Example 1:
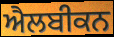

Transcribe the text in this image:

ਐਲਬੀਕਨ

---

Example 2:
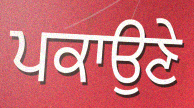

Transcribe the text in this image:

ਪਕਾਉਣੇ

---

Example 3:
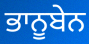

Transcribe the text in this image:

ਭਾਨੂਬੇਨ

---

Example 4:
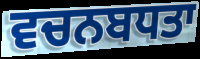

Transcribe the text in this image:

ਵਚਨਬਧਤਾ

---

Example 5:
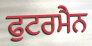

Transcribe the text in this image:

ਫੁਟਰਮੈਨ